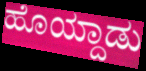
ಹೊಯ್ದಾಡು